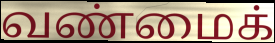
வண்மைக்